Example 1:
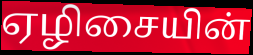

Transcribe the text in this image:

ஏழிசையின்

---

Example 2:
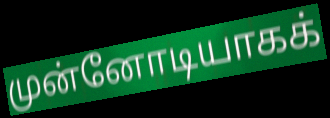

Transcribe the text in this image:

முன்னோடியாகக்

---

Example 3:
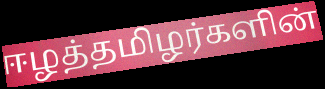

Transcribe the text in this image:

ஈழத்தமிழர்களின்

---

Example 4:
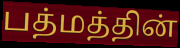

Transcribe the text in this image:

பத்மத்தின்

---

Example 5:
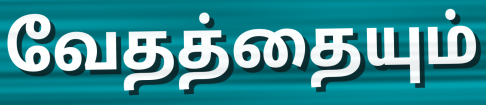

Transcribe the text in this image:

வேதத்தையும்